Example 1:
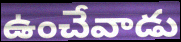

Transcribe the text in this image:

ఉంచేవాడు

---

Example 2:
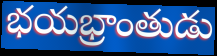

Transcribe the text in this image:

భయభ్రాంతుడు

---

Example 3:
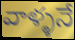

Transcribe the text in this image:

వాళ్ళనే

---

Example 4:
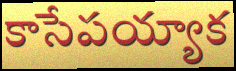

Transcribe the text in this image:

కాసేపయ్యాక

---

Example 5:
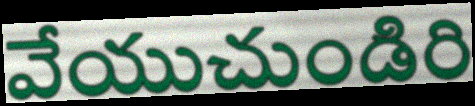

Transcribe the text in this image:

వేయుచుండిరి